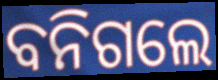
ବନିଗଲେ